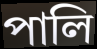
পালি